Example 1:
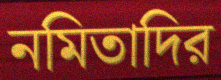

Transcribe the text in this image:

নমিতাদির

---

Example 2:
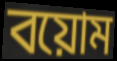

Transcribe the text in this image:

বয়োম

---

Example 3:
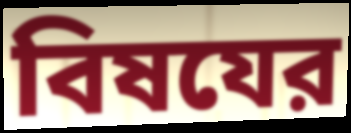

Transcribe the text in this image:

বিষযের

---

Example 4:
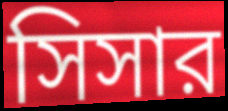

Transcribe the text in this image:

সিসার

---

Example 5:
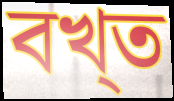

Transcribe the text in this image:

বখ্ত